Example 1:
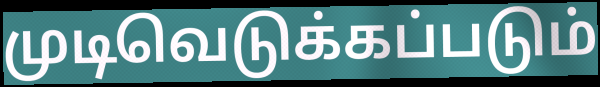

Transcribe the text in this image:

முடிவெடுக்கப்படும்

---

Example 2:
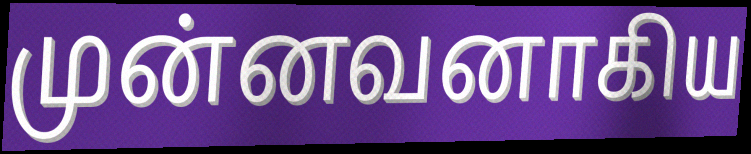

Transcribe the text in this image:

முன்னவனாகிய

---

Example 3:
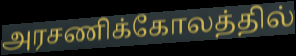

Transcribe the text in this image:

அரசணிக்கோலத்தில்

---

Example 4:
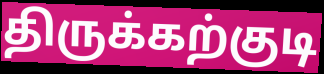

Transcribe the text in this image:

திருக்கற்குடி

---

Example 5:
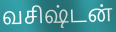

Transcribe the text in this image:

வசிஷ்டன்